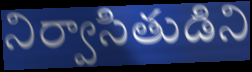
నిర్వాసితుడిని